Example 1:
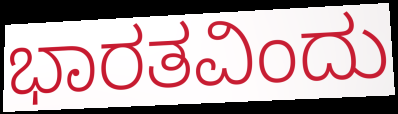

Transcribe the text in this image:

ಭಾರತವಿಂದು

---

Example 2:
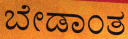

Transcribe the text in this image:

ಬೇಡಾಂತ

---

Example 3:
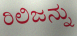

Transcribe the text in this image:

ರಿಲಿಜನ್ನು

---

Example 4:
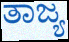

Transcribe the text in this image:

ತಾಜ್ಯ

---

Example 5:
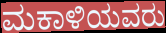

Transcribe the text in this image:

ಮಕಾಳಿಯವರು